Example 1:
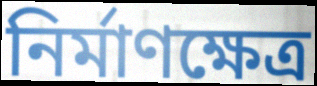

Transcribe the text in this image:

নির্মাণক্ষেত্র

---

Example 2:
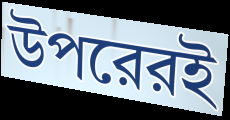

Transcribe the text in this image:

উপরেরই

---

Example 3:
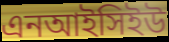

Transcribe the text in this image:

এনআইসিইউ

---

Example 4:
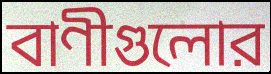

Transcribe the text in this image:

বাণীগুলোর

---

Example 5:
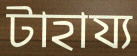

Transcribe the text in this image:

টাহায্য